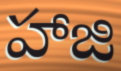
హాజి